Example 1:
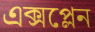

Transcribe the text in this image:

এক্সপ্লেন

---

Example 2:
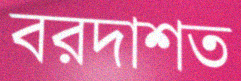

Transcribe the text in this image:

বরদাশত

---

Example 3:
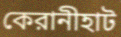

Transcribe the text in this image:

কেরানীহাট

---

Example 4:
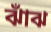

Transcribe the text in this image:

ঝাঁঝ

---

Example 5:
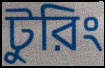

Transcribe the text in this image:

টুরিং